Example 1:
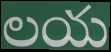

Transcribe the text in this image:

లయ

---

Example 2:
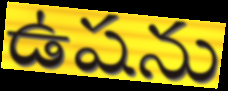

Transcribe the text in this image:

ఉషను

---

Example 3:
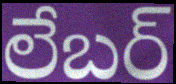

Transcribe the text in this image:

లేబర్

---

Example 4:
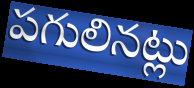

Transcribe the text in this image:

పగులినట్లు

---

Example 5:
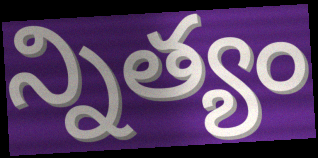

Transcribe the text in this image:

న్నిత్యం